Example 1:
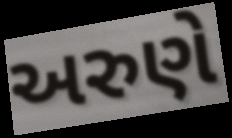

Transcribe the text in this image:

અરુણે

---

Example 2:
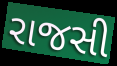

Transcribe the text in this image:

રાજસી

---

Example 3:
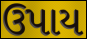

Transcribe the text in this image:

ઉપાય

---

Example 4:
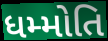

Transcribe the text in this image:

ધમ્મોતિ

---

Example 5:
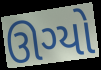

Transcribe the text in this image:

ઊગ્યો